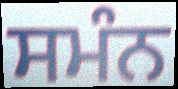
ਸਮੰਨ